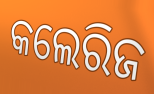
କଲେରିଜ